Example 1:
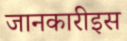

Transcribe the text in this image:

जानकारीइस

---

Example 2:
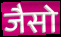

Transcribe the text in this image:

जैसो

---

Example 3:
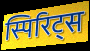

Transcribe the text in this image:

स्पिरिट्स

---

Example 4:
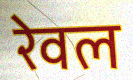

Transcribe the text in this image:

रेवल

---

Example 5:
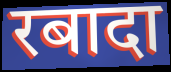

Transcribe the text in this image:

रबादा